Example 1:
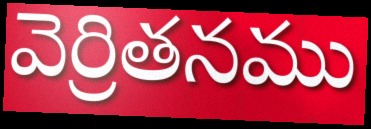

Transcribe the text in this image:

వెర్రితనము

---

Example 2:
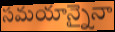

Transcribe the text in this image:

సమయాన్నైనా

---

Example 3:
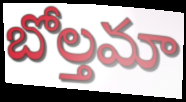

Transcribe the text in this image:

బోల్తమా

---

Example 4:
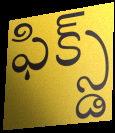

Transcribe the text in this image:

ఫిక్స్డ్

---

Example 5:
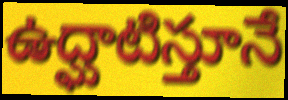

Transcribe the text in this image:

ఉద్ఘాటిస్తూనే